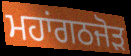
ਮਹਾਂਗਠਜੋਡ਼